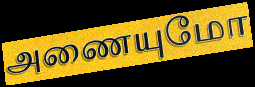
அணையுமோ